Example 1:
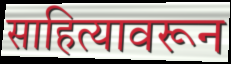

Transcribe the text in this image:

साहित्यावरून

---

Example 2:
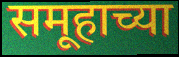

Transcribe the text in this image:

समूहाच्या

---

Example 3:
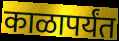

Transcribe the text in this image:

काळापर्यंत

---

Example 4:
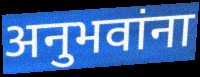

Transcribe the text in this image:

अनुभवांना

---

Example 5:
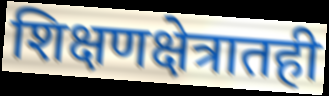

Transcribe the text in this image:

शिक्षणक्षेत्रातही